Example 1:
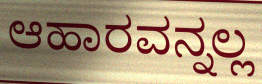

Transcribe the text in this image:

ಆಹಾರವನ್ನಲ್ಲ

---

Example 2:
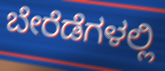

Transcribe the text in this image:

ಬೇರೆಡೆಗಳಲ್ಲಿ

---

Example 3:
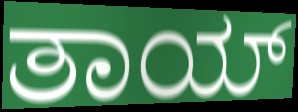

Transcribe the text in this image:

ತಾಯ್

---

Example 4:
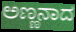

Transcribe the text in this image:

ಅಣ್ಣನಾದ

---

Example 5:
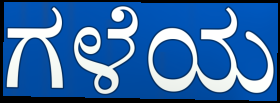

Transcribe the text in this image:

ಗಳೆಯ